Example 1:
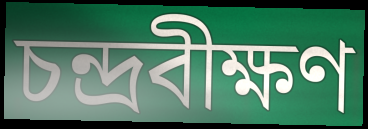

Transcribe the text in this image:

চন্দ্রবীক্ষণ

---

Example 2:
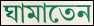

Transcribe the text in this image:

ঘামাতেন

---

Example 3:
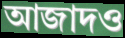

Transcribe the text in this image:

আজাদও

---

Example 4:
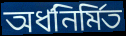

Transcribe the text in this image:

অর্ধনির্মিত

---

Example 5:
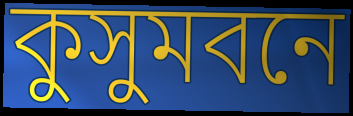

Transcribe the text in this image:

কুসুমবনে